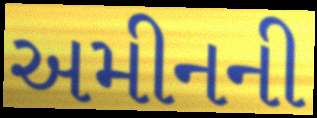
અમીનની